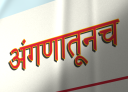
अंगणातूनच